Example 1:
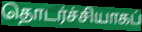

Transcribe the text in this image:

தொடர்ச்சியாகப்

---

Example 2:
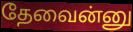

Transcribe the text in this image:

தேவைன்னு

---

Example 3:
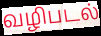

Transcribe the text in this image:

வழிபடல்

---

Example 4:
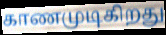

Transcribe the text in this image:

காணமுடிகிறது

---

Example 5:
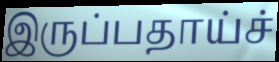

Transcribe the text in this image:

இருப்பதாய்ச்